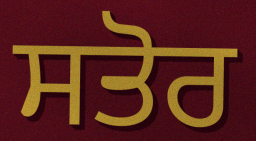
ਸਤੋਰ